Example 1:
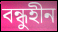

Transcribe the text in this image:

বন্ধুহীন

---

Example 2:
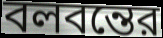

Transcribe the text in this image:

বলবন্তের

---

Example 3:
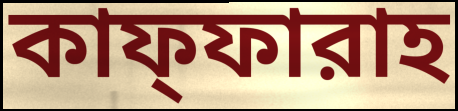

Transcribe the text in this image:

কাফ্ফারাহ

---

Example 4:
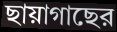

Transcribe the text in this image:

ছায়াগাছের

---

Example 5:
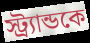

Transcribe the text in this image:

স্ট্র্যান্ডকে